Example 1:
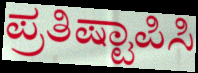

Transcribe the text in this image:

ಪ್ರತಿಷ್ಟಾಪಿಸಿ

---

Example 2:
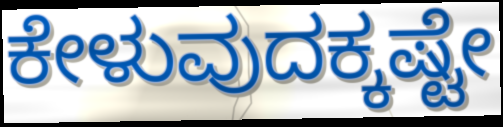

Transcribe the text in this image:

ಕೇಳುವುದಕ್ಕಷ್ಟೇ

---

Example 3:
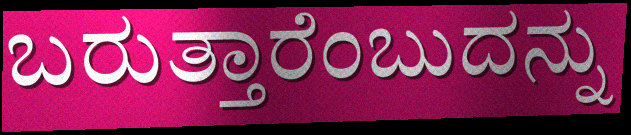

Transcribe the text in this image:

ಬರುತ್ತಾರೆಂಬುದನ್ನು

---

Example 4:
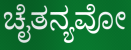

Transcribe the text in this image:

ಚೈತನ್ಯವೋ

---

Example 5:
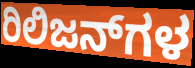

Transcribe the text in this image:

ರಿಲಿಜನ್‌ಗಳ